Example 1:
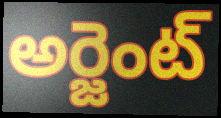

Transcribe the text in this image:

అర్జెంట్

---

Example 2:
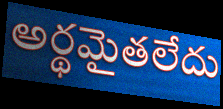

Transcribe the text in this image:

అర్థమైతలేదు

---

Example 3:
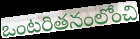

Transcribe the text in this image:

ఒంటరితనంలోంచి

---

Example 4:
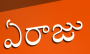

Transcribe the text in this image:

ఏరాజు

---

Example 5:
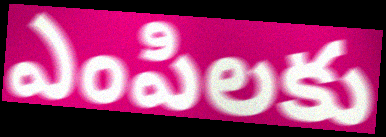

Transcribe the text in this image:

ఎంపిలకు